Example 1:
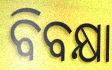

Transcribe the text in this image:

ବିବକ୍ଷା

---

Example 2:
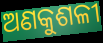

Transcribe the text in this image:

ଅଣକୁଶଳୀ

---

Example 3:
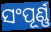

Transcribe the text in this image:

ସଂପୂର୍ଣ୍ଣ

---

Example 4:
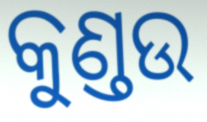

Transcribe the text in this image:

କୁଣ୍ଡଉ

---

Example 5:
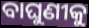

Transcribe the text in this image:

ବାଘୁଣୀକୁ